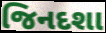
જિનદશા